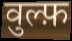
वुल्फ़